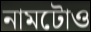
নামটোও